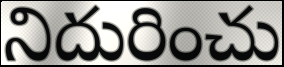
నిదురించు